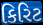
કિરિટ